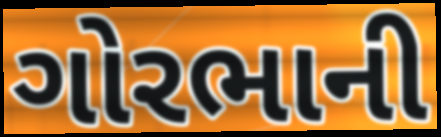
ગોરભાની